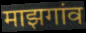
माझगांव